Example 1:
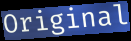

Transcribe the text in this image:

Original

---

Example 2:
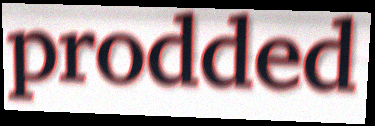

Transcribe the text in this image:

prodded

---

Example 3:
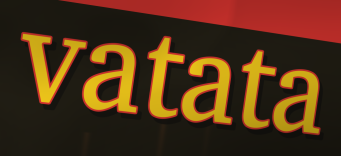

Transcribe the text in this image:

vatata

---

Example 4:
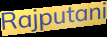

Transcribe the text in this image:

Rajputani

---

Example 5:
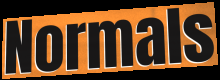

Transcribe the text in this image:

Normals